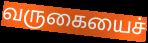
வருகையைச்